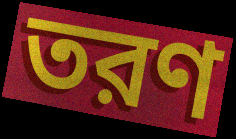
তরণ